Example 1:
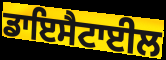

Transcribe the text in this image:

ਡਾਇਸੈਟਾਈਲ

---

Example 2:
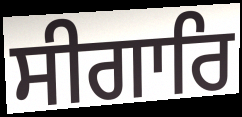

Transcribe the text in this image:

ਸੀਗਾਰਿ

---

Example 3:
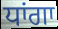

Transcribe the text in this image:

ਧਾਂਗਾ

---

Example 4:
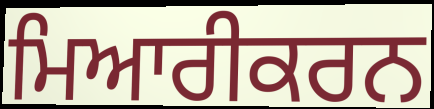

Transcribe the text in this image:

ਮਿਆਰੀਕਰਨ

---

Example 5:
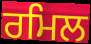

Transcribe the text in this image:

ਰਮਿਲ